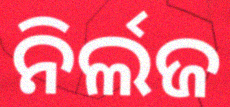
ନିର୍ଲଜ